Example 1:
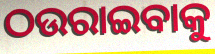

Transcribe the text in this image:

ଠଉରାଇବାକୁ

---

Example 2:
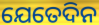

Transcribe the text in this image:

ଯେତେଦିନ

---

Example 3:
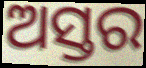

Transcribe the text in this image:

ଅସ୍ତର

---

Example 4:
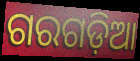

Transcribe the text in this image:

ଗରଗଡ଼ିଆ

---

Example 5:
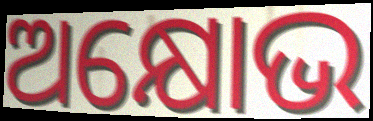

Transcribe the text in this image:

ଅକ୍ଷୋଭ